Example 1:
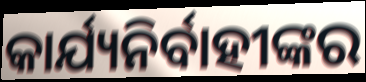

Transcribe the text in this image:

କାର୍ଯ୍ୟନିର୍ବାହୀଙ୍କର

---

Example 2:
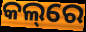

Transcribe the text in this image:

କଲ୍‌ରେ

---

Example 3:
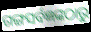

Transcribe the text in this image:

ଗଙ୍ଗସର୍ବଜ୍ଞଙ୍କଠାରୁ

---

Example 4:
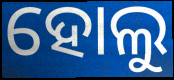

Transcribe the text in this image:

ହୋଲୁ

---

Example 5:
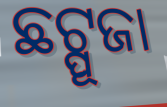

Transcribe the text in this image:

ଛଟ୍ପୂଜା